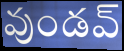
వుండవ్